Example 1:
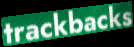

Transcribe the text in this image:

trackbacks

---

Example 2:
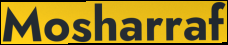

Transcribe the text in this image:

Mosharraf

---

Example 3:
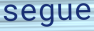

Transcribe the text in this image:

segue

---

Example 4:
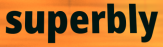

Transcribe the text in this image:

superbly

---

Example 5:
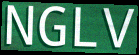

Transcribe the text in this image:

NGLV